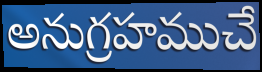
అనుగ్రహముచే